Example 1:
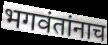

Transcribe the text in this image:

भगवंतांनाच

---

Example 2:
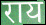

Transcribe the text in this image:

राय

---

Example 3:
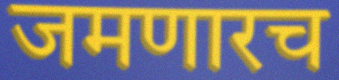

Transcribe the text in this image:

जमणारच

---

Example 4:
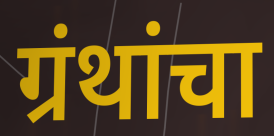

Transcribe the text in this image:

ग्रंथांचा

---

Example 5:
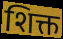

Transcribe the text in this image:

शिक्त